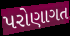
પરોણાગત